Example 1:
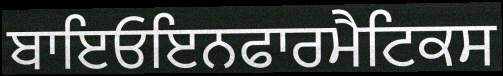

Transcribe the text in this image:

ਬਾਇਓਇਨਫਾਰਮੈਟਿਕਸ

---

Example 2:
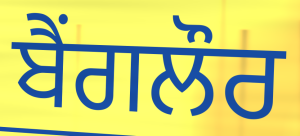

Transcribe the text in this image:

ਬੈੰਗਲੌਰ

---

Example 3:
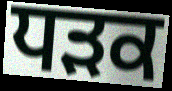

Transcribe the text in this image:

ਧਡ਼ਕ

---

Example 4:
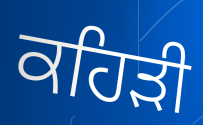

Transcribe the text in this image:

ਕਹਿੜੀ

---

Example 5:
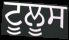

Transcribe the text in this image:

ਟੂਲੂਸ